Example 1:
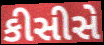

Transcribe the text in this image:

કીસીસે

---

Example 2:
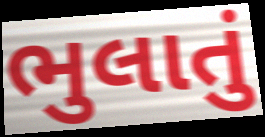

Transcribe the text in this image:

ભુલાતું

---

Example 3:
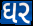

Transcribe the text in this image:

ઘર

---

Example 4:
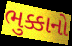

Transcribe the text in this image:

ભુક્કાનો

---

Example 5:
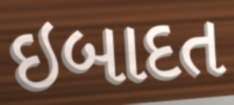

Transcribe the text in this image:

ઇબાદત